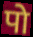
पो